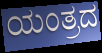
ಯಂತ್ರದ